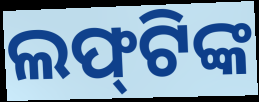
ଲଫ୍‌ଟିଙ୍କ